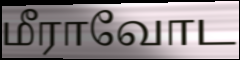
மீராவோட